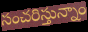
సంచరిస్తున్నాం